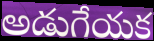
అడుగేయక